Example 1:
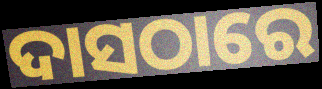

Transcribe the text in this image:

ଦାସଠାରେ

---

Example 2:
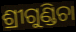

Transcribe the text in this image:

ଶ୍ରୀଗୁଣ୍ଡିଚା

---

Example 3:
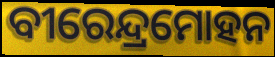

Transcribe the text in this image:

ବୀରେନ୍ଦ୍ରମୋହନ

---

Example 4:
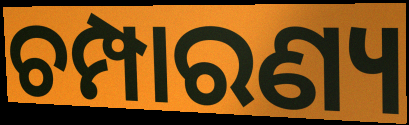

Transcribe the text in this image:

ଚମ୍ପାରଣ୍ୟ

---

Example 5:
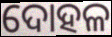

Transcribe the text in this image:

ଦୋହଳ